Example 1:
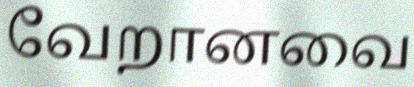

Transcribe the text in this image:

வேறானவை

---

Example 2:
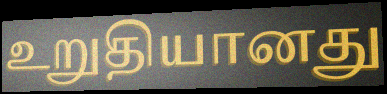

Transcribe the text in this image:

உறுதியானது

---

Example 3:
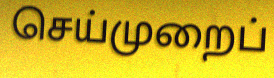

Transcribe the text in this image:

செய்முறைப்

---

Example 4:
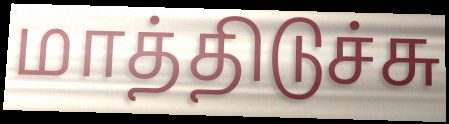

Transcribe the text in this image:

மாத்திடுச்சு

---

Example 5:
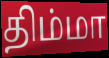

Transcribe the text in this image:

திம்மா